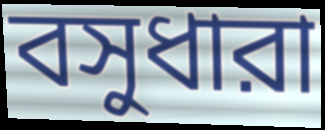
বসুধারা